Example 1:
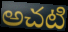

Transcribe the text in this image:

అచటి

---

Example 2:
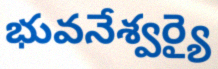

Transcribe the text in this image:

భువనేశ్వర్యై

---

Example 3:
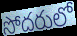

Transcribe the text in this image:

సోదరులో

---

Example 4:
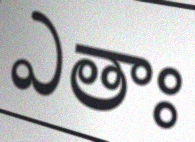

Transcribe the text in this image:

ఎతాః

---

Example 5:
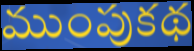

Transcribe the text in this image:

ముంపుకథ